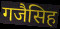
गजैसिह